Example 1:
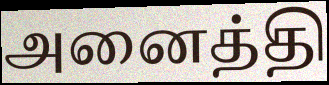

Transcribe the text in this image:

அனைத்தி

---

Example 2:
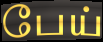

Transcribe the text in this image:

பேய்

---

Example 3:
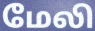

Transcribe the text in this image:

மேலி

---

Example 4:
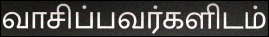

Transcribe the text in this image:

வாசிப்பவர்களிடம்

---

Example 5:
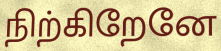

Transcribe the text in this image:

நிற்கிறேனே